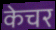
केचर